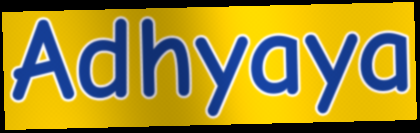
Adhyaya